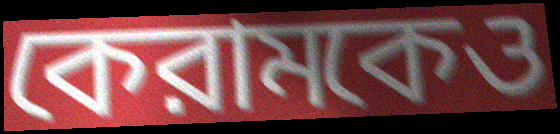
কেরামকেও